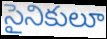
సైనికులూ